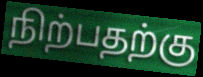
நிற்பதற்கு